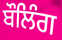
ਬੌਲਿੰਗ